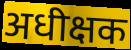
अधीक्षक